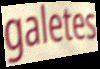
galetes